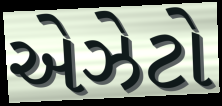
એઝેટો